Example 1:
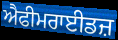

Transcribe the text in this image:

ਐਫੀਮਰਾਈਡਜ਼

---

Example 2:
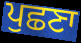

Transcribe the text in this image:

ਪੁਛਣਾ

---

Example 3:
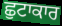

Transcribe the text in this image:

ਛੁਟਾਕਾਰ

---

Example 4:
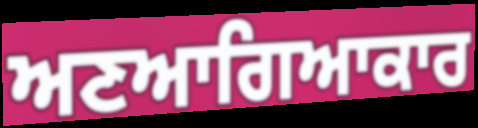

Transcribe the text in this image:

ਅਣਆਗਿਆਕਾਰ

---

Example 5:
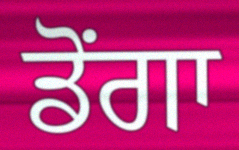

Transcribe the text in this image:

ਡੋਂਗਾ